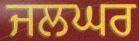
ਜਲਘਰ